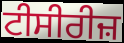
ਟੀਸੀਰੀਜ਼